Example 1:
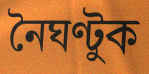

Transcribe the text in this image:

নৈঘণ্টুক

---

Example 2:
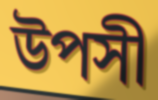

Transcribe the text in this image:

উপসী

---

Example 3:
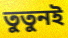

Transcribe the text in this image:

তুতুনই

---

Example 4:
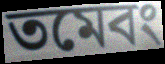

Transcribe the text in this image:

তমেবং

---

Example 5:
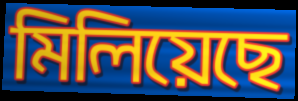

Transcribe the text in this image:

মিলিয়েছে